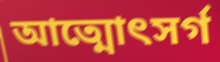
আত্মোৎসর্গ